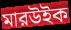
মারউইক